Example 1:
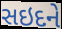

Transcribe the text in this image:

સઇદને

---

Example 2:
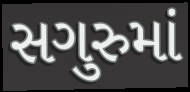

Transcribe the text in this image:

સગુરુમાં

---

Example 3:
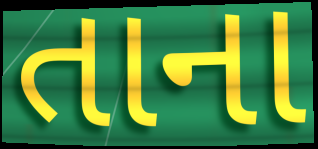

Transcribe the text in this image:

તાના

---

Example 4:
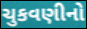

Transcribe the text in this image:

ચુકવણીનો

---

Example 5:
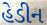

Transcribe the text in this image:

હેડીન